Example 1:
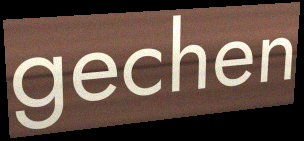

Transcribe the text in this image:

gechen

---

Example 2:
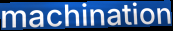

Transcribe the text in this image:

machination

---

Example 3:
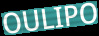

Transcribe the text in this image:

OULIPO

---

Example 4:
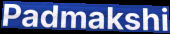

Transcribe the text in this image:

Padmakshi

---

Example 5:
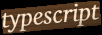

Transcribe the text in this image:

typescript